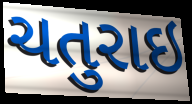
ચતુરાઇ